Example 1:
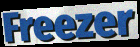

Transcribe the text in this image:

Freezer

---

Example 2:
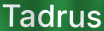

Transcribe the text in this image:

Tadrus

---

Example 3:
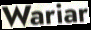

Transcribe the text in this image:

Wariar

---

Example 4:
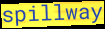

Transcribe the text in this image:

spillway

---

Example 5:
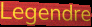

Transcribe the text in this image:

Legendre